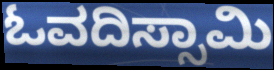
ಓವದಿಸ್ಸಾಮಿ